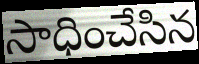
సాధించేసిన